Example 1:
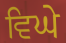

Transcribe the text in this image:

ਵਿਘੇ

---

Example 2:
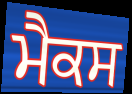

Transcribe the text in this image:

ਮੈਕਸ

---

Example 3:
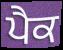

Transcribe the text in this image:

ਪੈਕ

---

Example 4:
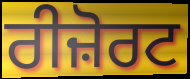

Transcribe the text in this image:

ਰੀਜ਼ੋਰਟ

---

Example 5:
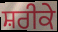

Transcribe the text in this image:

ਸ਼ਰੀਕੇ